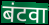
बंटवा